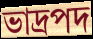
ভাদ্রপদ